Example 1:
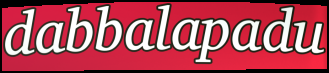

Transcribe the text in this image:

dabbalapadu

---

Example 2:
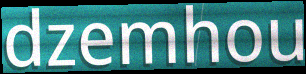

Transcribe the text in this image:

dzemhou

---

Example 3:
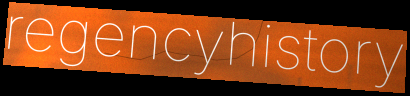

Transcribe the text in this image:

regencyhistory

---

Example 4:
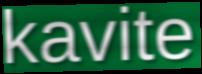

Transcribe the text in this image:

kavite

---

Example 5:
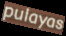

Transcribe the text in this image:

pulayas